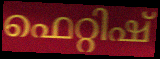
ഫെറ്റിഷ്